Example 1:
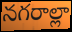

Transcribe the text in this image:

నగరాల్లా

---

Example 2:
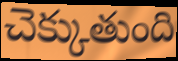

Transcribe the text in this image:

చెక్కుతుంది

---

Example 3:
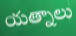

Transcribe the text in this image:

యత్నాలు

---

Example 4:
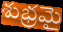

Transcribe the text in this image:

శుభ్రమై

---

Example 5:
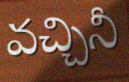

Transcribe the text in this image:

వచ్చినీ